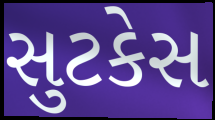
સુટકેસ